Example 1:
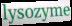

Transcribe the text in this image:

lysozyme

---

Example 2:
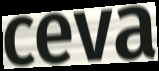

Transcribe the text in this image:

ceva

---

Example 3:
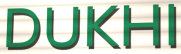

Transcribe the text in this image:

DUKHI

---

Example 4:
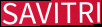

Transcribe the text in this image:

SAVITRI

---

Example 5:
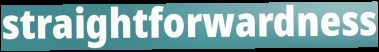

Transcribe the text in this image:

straightforwardness